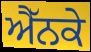
ਐੱਨਕੇ